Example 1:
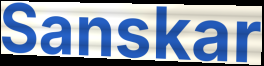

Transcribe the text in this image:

Sanskar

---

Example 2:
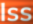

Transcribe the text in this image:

Iss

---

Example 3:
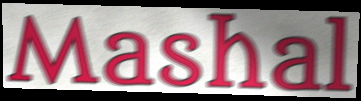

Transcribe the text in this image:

Mashal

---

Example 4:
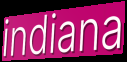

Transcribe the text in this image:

indiana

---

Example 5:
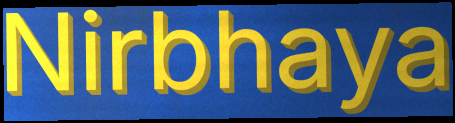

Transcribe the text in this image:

Nirbhaya